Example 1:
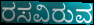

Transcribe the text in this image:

ರಸವಿರುವ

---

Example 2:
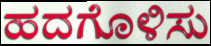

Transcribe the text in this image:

ಹದಗೊಳಿಸು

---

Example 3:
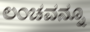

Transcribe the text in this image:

ಲಂಚವನ್ನೂ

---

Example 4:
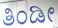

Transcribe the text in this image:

ತಿಂಡೀ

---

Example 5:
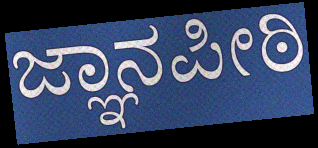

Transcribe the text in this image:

ಜ್ಞಾನಪೀಠಿ